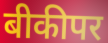
बीकीपर